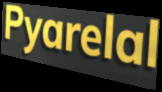
Pyarelal